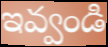
ఇవ్వండి